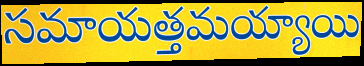
సమాయత్తమయ్యాయి